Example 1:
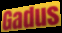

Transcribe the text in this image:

Gadus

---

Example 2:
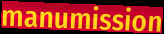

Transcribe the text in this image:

manumission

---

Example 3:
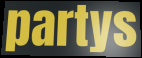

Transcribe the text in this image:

partys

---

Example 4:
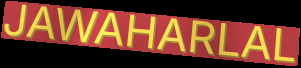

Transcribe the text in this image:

JAWAHARLAL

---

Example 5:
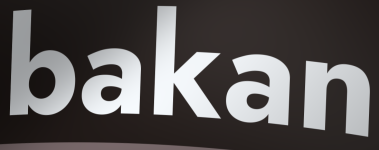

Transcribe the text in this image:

bakan